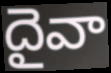
దైవా